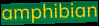
amphibian